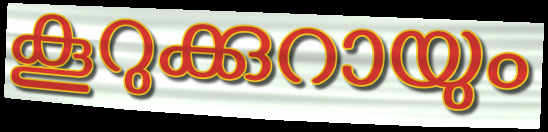
കൂറുക്കുറായും